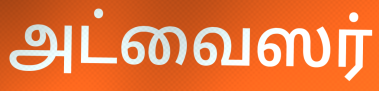
அட்வைஸர்